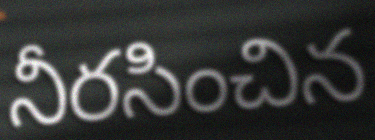
నీరసించిన